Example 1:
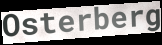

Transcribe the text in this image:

Osterberg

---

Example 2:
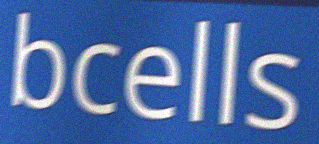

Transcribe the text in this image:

bcells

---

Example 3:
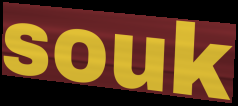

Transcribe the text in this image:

souk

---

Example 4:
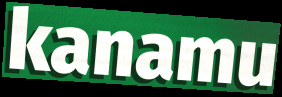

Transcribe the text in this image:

kanamu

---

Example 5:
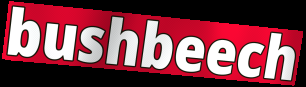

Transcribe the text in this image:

bushbeech